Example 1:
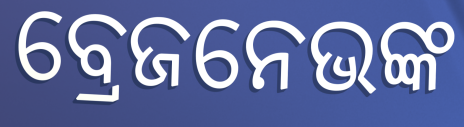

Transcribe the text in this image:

ବ୍ରେଜନେଭଙ୍କ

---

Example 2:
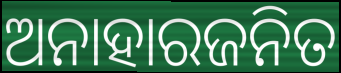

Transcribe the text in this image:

ଅନାହାରଜନିତ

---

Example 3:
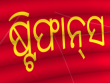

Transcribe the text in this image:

ଷ୍ଟିଫାନ୍‍ସ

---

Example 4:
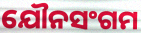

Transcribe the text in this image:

ଯୌନସଂଗମ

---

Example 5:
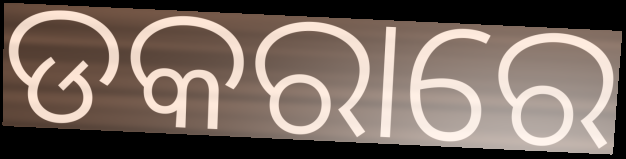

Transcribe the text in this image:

ଡକରାରେ